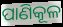
ପାଣିକୂଳ